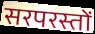
सरपरस्तों